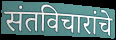
संतविचारांचे